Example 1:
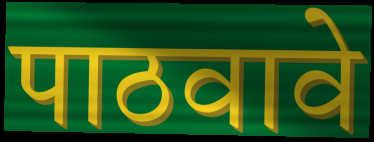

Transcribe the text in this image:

पाठवावे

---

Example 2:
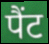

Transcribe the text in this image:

पैंट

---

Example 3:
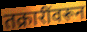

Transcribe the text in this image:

तक्रारींवरून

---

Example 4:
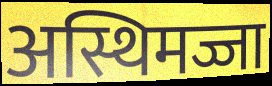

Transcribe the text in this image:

अस्थिमज्जा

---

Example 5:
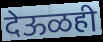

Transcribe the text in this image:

देऊळही